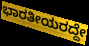
ಭಾರತೀಯರದ್ದೇ